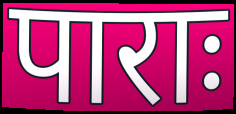
पाराः